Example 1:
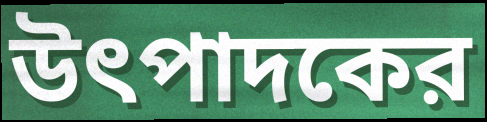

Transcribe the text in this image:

উৎপাদকের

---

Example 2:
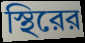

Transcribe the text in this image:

স্থিরের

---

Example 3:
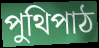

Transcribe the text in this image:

পুথিপাঠ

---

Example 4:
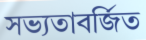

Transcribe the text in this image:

সভ্যতাবর্জিত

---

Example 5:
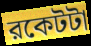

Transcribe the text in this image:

রকেটটা